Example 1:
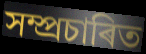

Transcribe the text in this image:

সম্প্ৰচাৰিত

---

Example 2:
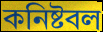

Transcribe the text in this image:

কনিষ্টবল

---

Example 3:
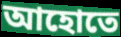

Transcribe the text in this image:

আহোতে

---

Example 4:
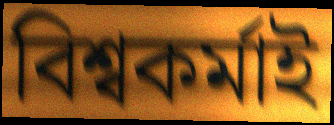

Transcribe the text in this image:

বিশ্বকৰ্মাই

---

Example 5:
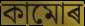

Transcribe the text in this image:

কামোৰ